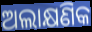
ଅଲାକ୍ଷଣିକ